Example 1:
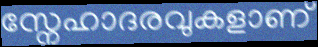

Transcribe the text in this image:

സ്നേഹാദരവുകളാണ്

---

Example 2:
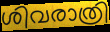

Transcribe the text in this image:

ശിവരാത്രി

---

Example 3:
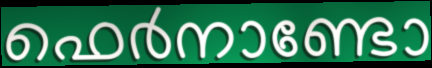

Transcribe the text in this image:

ഫെർനാണ്ടോ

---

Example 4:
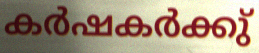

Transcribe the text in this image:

കർഷകർക്കു്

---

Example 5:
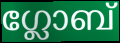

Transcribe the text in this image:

ഗ്ലോബ്